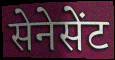
सेनेसेंट